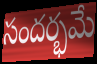
సందర్భమే